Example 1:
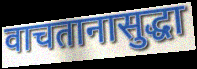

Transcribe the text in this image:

वाचतानासुद्धा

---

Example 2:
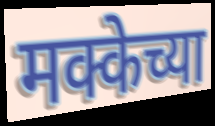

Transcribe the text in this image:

मक्केच्या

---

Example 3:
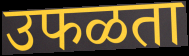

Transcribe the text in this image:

उफळता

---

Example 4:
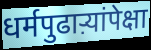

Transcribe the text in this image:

धर्मपुढाऱ्‍यांपेक्षा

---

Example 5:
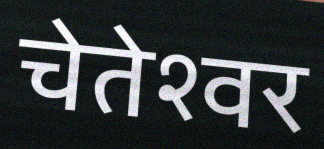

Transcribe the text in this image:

चेतेश्वर